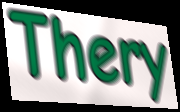
Thery